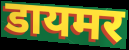
डायमर